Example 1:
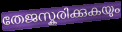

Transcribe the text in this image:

തേജസ്കരിക്കുകയും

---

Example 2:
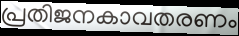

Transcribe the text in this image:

പ്രതിജനകാവതരണം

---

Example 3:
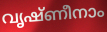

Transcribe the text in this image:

വൃഷ്ണീനാം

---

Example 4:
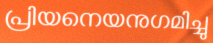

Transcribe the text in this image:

പ്രിയനെയനുഗമിച്ചു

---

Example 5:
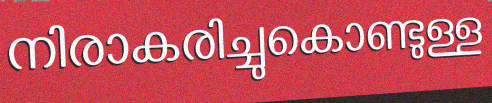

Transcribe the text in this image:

നിരാകരിച്ചുകൊണ്ടുള്ള